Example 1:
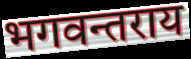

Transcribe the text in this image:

भगवन्तराय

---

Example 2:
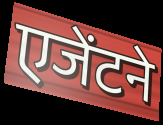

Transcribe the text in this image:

एजेंटने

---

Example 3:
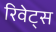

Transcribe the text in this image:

रिवेट्स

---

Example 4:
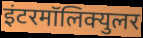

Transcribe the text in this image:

इंटरमॉलिक्युलर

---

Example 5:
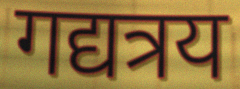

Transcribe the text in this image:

गद्यत्रय